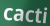
cacti